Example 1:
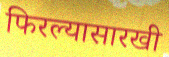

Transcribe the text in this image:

फिरल्यासारखी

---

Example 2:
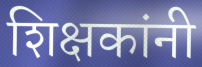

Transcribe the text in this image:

शिक्षकांनी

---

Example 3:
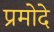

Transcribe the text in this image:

प्रमोदे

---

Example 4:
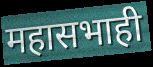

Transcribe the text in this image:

महासभाही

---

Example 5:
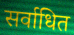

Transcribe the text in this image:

सर्वाधित